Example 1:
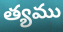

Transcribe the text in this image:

త్యము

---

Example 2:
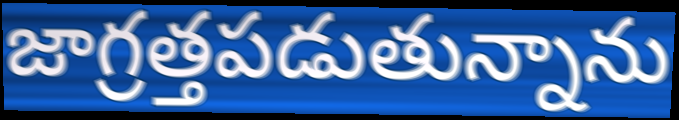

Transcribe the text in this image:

జాగ్రత్తపడుతున్నాను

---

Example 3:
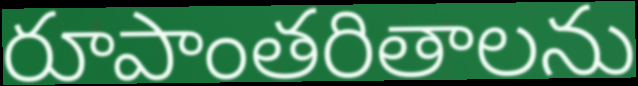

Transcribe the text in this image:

రూపాంతరితాలను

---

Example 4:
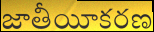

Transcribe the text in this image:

జాతీయీకరణ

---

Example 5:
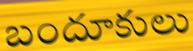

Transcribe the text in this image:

బందూకులు